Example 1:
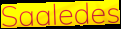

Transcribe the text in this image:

Saaledes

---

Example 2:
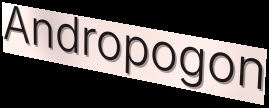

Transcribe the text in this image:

Andropogon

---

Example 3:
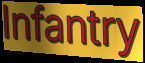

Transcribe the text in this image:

Infantry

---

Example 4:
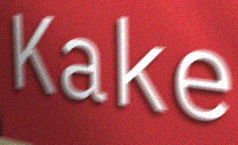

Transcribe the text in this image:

Kake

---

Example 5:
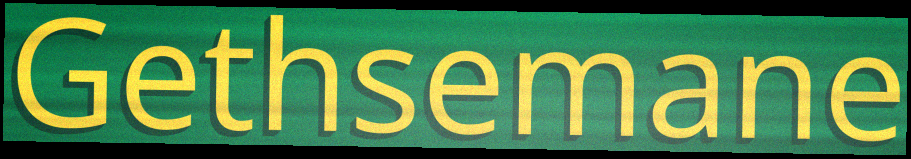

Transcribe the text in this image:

Gethsemane